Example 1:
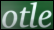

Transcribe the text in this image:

otle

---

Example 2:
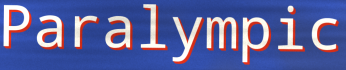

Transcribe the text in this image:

Paralympic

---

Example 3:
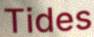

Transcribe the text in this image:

Tides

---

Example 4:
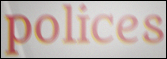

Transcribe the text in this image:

polices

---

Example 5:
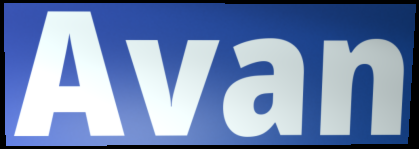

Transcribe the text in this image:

Avan